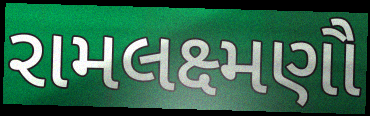
રામલક્ષ્મણૌ